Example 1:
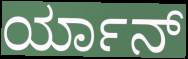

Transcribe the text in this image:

ರ್ಯಾನ್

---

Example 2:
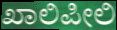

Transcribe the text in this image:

ಖಾಲಿಪೀಲಿ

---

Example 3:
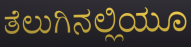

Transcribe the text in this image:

ತೆಲುಗಿನಲ್ಲಿಯೂ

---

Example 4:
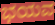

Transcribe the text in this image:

ಭಯವ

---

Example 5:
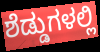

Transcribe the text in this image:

ಶೆಡ್ಡುಗಳಲ್ಲಿ